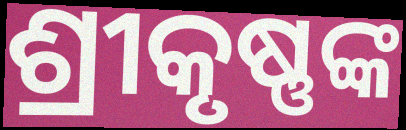
ଶ୍ରୀକୃଷ୍ଣଙ୍କ